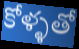
కోళ్ళతో